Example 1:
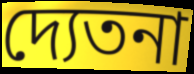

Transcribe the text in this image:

দ্যেতনা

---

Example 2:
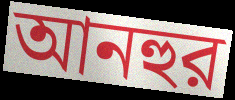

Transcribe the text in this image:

আনহুর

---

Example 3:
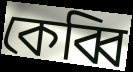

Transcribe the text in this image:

কেব্বি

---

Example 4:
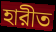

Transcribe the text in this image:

হারীত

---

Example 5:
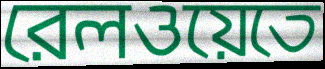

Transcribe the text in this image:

রেলওয়েতে